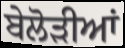
ਬੇਲੋੜੀਆਂ